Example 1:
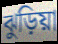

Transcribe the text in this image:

ঝুড়িয়া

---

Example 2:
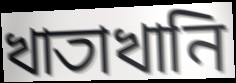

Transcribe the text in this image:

খাতাখানি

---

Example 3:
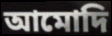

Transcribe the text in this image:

আমোদি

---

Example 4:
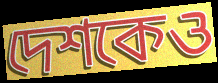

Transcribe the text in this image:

দেশকেও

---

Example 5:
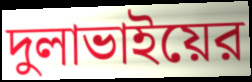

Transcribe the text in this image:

দুলাভাইয়ের